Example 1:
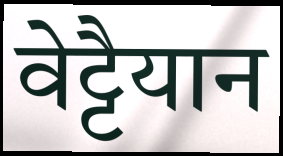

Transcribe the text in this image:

वेट्टैयान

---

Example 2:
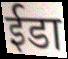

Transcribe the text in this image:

ईडा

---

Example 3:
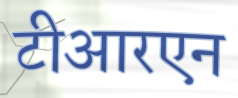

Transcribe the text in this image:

टीआरएन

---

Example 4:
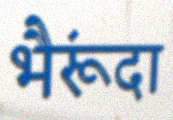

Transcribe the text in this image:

भैरूंदा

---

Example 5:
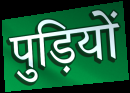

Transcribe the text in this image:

पुड़ियों